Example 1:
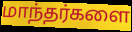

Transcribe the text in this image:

மாந்தர்களை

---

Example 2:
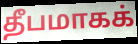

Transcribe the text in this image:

தீபமாகக்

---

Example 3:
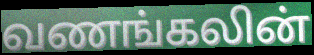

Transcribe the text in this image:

வணங்கலின்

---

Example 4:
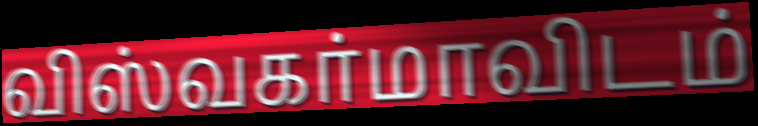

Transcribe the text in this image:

விஸ்வகர்மாவிடம்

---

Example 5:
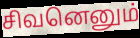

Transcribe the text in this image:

சிவனெனும்